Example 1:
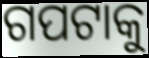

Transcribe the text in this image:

ଗପଟାକୁ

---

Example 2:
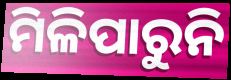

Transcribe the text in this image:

ମିଳିପାରୁନି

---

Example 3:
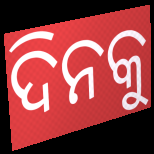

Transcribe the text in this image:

ଦିନକୁ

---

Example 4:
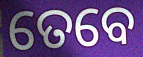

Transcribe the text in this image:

ତେବେ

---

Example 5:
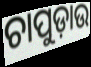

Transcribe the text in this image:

ଚାପୁଡ଼ାଉ